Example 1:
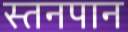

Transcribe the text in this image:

स्तनपान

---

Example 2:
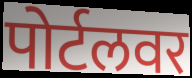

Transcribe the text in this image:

पोर्टलवर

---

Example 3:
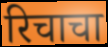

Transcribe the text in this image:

रिचाचा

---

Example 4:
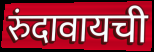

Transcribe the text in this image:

रुंदावायची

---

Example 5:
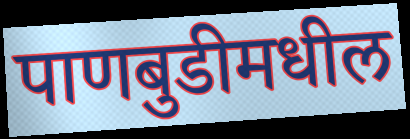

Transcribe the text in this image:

पाणबुडीमधील